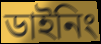
ডাইনিং